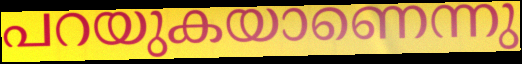
പറയുകയാണെന്നു